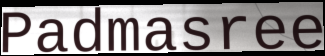
Padmasree